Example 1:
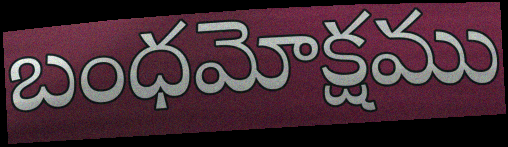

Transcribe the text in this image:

బంధమోక్షము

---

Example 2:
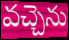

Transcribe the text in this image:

వచ్చెను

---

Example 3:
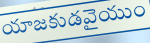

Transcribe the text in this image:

యాజకుడవైయుం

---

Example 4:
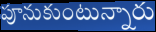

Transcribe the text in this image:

పూనుకుంటున్నారు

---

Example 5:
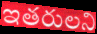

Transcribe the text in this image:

ఇతరులని